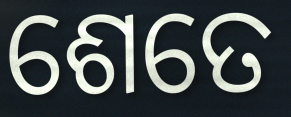
ଶେତେ